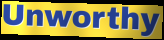
Unworthy